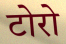
टोरो